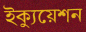
ইক্যুয়েশন